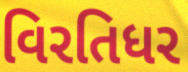
વિરતિધર